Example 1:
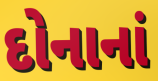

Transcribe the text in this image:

દોનાનાં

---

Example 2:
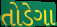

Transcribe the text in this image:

તોડેગા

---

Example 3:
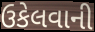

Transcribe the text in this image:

ઉકેલવાની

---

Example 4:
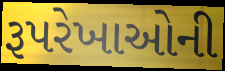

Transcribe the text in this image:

રૂપરેખાઓની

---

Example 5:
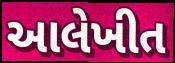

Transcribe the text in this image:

આલેખીત